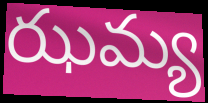
ఝమ్య